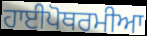
ਹਾਈਪੋਥਰਮੀਆ